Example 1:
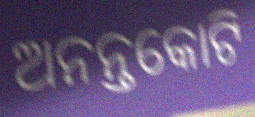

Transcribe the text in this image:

ଅନନ୍ତକୋଟି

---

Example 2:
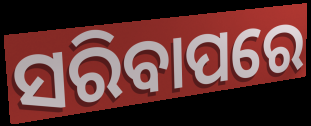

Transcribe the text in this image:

ସରିବାପରେ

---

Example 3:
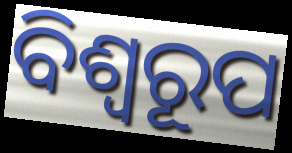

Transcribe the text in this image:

ବିଶ୍ୱରୂପ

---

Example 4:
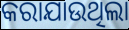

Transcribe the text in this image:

କରାଯାଉଥିଲା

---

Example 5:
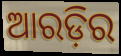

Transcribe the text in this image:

ଆରଡ଼ିର